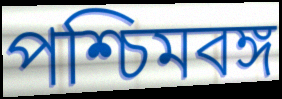
পশ্চিমবঙ্গ